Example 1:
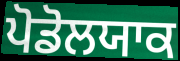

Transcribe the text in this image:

ਪੋਡੋਲਯਾਕ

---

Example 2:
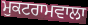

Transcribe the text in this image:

ਮੁਕਟਰਾਮਵਾਲਾ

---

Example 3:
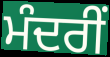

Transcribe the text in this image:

ਮੰਦਰੀਂ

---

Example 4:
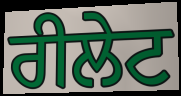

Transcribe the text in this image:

ਰੀਲੇਟ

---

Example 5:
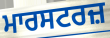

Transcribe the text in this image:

ਮਾਰਸਟਰਜ਼